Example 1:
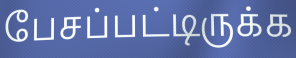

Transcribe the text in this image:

பேசப்பட்டிருக்க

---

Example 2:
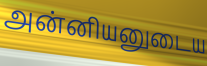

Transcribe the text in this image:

அன்னியனுடைய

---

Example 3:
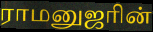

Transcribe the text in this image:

ராமனுஜரின்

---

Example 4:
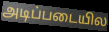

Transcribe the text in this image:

அடிப்படையில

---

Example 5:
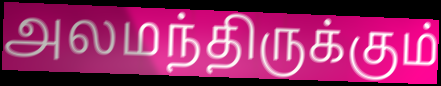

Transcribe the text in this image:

அலமந்திருக்கும்